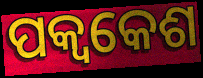
ପକ୍ଵକେଶ